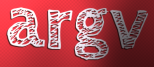
argv